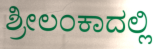
ಶ್ರೀಲಂಕಾದಲ್ಲಿ